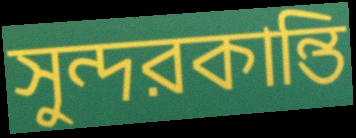
সুন্দরকান্তি